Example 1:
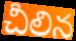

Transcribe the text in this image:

చీలిన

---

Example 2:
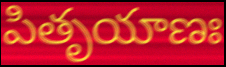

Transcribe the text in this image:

పితృయాణః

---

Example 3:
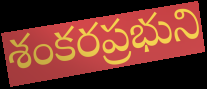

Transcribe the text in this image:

శంకరప్రభుని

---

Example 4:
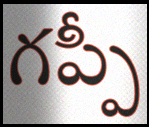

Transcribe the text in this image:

గప్పీ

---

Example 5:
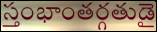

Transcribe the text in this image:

స్తంభాంతర్గతుడై